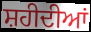
ਸ਼ਹੀਦੀਆਂ